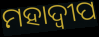
ମହାଦ୍ୱୀପ